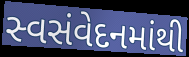
સ્વસંવેદનમાંથી